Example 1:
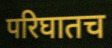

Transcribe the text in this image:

परिघातच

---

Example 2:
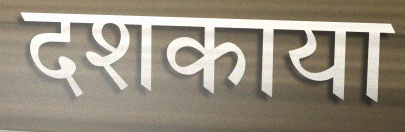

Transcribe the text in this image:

दशकाया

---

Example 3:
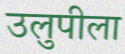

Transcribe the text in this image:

उलुपीला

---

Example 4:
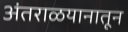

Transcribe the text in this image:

अंतराळयानातून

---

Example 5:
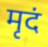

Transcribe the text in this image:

मृदं